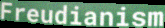
Freudianism